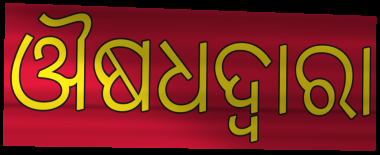
ଔଷଧଦ୍ବାରା